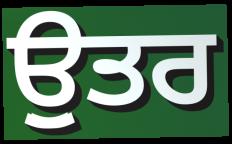
ਉੁਤਰ